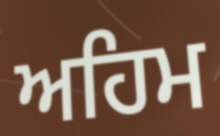
ਅਹਿਮ